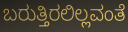
ಬರುತ್ತಿರಲಿಲ್ಲವಂತೆ